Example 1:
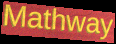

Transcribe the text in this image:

Mathway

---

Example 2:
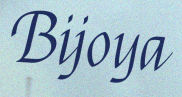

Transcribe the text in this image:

Bijoya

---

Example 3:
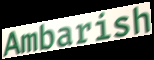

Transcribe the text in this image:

Ambarish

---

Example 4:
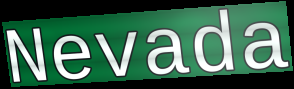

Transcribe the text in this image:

Nevada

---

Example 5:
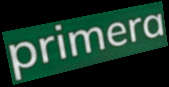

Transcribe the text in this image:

primera